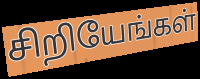
சிறியேங்கள்